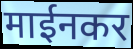
माईनकर